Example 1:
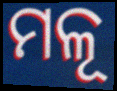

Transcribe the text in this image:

ମଳୂ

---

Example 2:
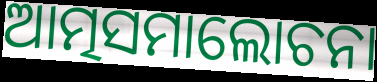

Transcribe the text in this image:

ଆତ୍ମସମାଲୋଚନା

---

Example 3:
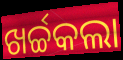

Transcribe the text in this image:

ଖର୍ଚ୍ଚକଲା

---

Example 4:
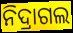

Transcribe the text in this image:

ନିଦ୍ରାଗଲ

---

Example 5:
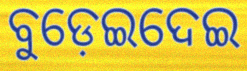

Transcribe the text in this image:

ବୁଡ଼େଇଦେଇ